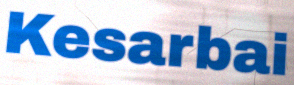
Kesarbai